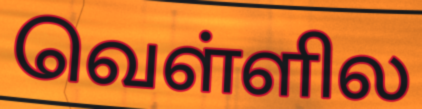
வெள்ளில